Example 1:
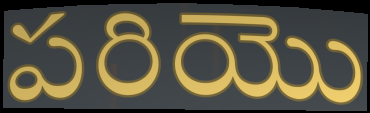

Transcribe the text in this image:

పరియొ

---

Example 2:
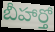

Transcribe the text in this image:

బీహార్తో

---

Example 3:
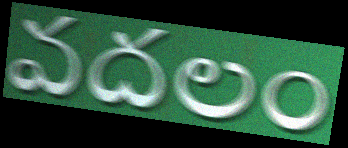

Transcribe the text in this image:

వదలం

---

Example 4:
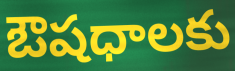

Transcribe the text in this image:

ఔషధాలకు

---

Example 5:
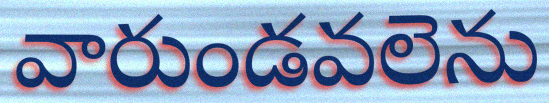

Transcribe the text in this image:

వారుండవలెను